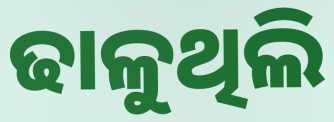
ଢାଳୁଥିଲି